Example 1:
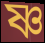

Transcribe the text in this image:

ষ্ণ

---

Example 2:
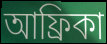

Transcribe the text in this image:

আফ্ৰিকা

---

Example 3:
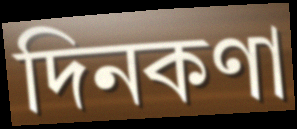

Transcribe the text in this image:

দিনকণা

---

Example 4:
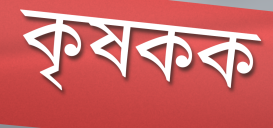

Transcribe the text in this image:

কৃষকক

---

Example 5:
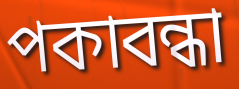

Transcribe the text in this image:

পকাবন্ধা